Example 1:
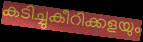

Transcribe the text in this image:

കടിച്ചുകീറിക്കളയും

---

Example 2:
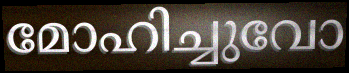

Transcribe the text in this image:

മോഹിച്ചുവോ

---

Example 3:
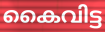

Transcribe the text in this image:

കൈവിട്ട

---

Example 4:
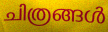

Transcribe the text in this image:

ചിത്രങ്ങൾ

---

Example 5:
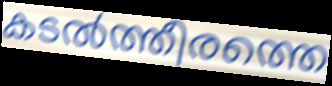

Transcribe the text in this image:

കടൽത്തീരത്തെ